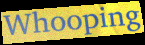
Whooping